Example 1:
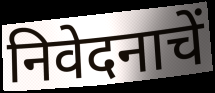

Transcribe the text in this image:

निवेदनाचें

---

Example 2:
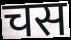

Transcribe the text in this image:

चस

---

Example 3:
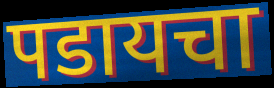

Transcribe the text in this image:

पडायचा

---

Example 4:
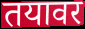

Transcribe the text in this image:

तयावर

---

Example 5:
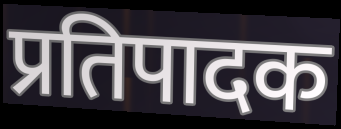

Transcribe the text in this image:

प्रतिपादक